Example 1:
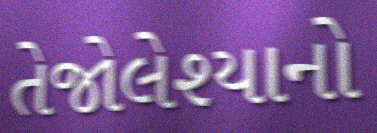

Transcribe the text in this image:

તેજોલેશ્યાનો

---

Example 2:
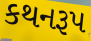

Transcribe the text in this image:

કથનરૂપ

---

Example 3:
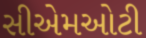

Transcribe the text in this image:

સીએમઓટી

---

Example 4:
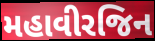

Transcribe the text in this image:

મહાવીરજિન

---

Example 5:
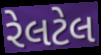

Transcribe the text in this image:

રેલટેલ